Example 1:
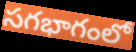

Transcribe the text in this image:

సగభాగంలో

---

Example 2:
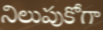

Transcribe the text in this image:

నిలుపుకోగా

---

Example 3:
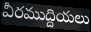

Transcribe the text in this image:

వీరముద్దియలు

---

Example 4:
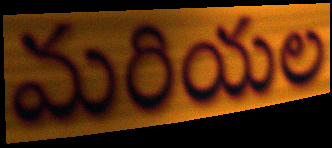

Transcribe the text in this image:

మరియల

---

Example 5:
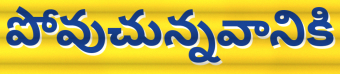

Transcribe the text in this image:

పోవుచున్నవానికి